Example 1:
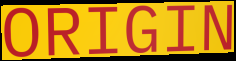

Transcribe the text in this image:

ORIGIN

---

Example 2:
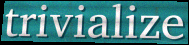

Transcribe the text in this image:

trivialize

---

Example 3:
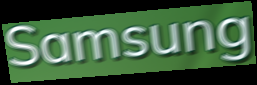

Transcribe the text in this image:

Samsung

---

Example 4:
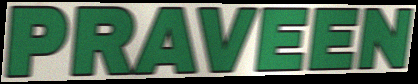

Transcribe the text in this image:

PRAVEEN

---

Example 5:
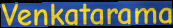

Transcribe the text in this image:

Venkatarama